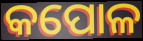
କପୋଳ